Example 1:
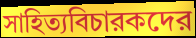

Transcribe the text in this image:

সাহিত্যবিচারকদের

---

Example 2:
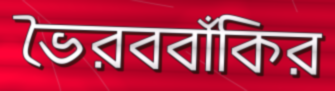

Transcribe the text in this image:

ভৈরববাঁকির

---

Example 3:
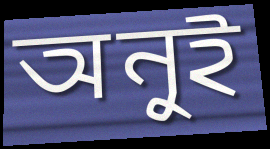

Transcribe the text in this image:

অনুই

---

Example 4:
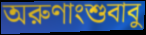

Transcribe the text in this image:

অরুণাংশুবাবু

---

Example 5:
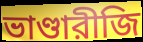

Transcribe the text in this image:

ভাণ্ডারীজি